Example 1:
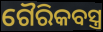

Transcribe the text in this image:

ଗୈରିକବସ୍ତ୍ର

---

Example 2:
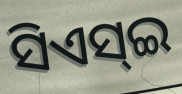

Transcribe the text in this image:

ସିଏସ୍ଇ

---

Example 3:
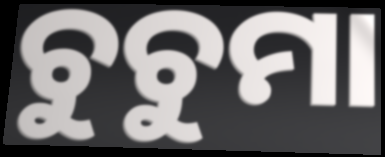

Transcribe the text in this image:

ଚୁଚୁମା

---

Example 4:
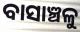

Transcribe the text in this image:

ବାସାଞ୍ଚଳୁ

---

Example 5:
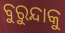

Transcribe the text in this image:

ବୁରୁନ୍ଦାକୁ